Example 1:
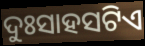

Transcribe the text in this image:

ଦୁଃସାହସଟିଏ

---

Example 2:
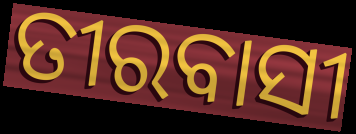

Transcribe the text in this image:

ତୀରବାସୀ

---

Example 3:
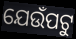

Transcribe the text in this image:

ଯେଉଁପଟୁ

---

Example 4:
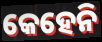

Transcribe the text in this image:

କେହେନି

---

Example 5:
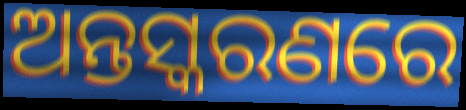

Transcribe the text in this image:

ଅନ୍ତସ୍କରଣରେ